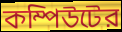
কম্পিউটের